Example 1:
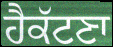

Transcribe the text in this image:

ਹੈਕੱਟਣਾ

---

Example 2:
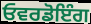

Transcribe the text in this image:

ਓਵਰਡੋਇੰਗ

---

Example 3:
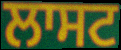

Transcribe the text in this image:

ਲਾਸਟ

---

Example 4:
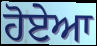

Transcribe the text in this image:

ਹੋਏਆ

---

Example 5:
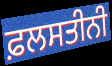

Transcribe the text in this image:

ਫ਼ਲਸਤੀਨੀ